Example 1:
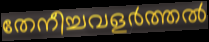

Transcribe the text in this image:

തേനീച്ചവളർത്തൽ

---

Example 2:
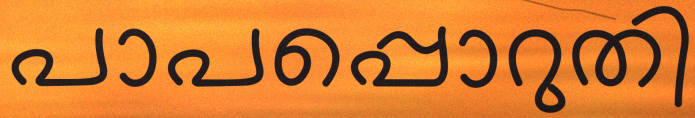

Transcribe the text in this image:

പാപപ്പൊറുതി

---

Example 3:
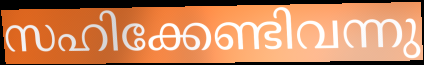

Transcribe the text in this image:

സഹിക്കേണ്ടിവന്നു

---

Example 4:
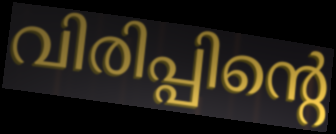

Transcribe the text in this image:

വിരിപ്പിന്റെ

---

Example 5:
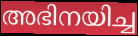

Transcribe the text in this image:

അഭിനയിച്ച